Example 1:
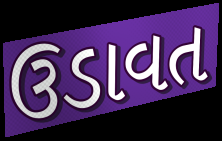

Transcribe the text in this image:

ઉડાવત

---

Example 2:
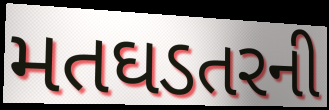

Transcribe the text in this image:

મતઘડતરની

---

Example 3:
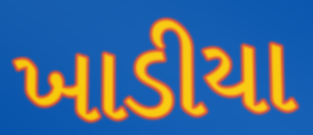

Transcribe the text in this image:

ખાડીયા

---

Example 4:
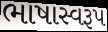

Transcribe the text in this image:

ભાષાસ્વરૂપ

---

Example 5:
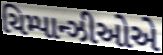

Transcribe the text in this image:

ચિમ્પાન્ઝીઓએ